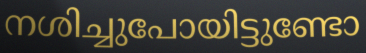
നശിച്ചുപോയിട്ടുണ്ടോ